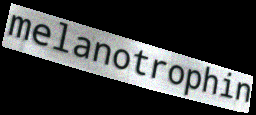
melanotrophin